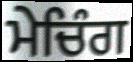
ਮੇਚਿੰਗ